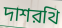
দাশরথি